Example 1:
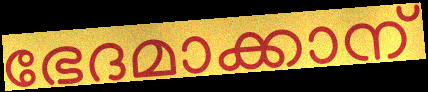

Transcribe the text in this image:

ഭേദമാക്കാന്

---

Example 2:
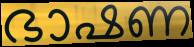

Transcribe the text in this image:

ഭാഷണ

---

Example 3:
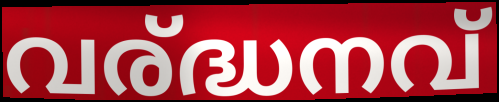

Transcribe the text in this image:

വര്ദ്ധനവ്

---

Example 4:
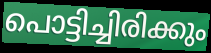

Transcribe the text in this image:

പൊട്ടിച്ചിരിക്കും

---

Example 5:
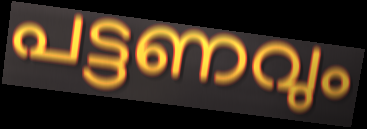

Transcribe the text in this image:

പട്ടണവും